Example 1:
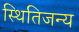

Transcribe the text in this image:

स्थितिजन्य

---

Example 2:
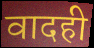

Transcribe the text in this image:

वादही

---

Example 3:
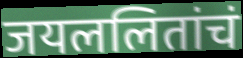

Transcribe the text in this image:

जयललितांचं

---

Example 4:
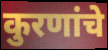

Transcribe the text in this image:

कुरणांचे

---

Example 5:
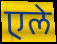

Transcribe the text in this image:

एले